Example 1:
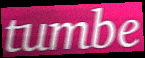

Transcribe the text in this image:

tumbe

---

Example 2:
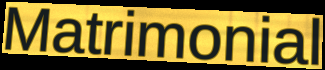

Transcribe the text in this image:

Matrimonial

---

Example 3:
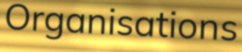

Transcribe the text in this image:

Organisations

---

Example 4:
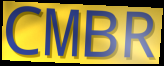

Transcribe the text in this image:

CMBR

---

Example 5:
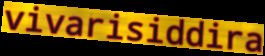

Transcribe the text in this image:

vivarisiddira